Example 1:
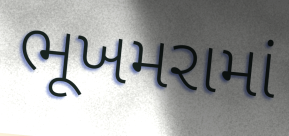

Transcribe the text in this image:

ભૂખમરામાં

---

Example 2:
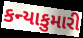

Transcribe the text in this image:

કન્યાકુમારી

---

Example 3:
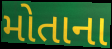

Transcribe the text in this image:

મોતાના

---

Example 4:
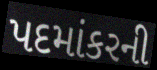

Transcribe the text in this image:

પદમાંકરની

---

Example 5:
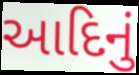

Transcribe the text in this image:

આદિનું